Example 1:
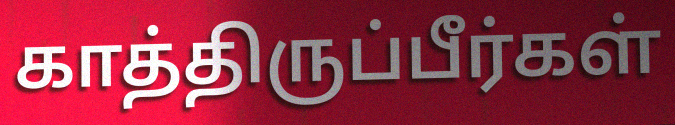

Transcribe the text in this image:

காத்திருப்பீர்கள்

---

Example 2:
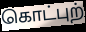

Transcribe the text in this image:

கொட்புற்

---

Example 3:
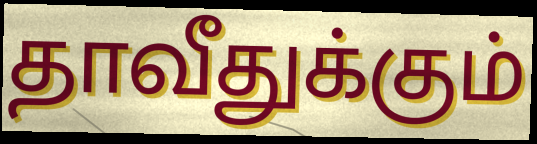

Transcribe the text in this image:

தாவீதுக்கும்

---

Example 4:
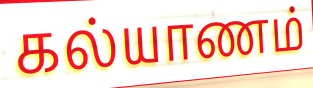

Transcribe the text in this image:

கல்யாணம்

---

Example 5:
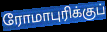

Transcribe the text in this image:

ரோமாபுரிக்குப்